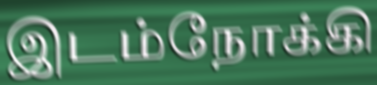
இடம்நோக்கி